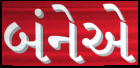
બંનેએ